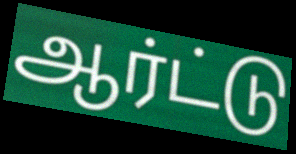
ஆர்ட்டு